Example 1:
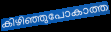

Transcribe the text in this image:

കിഴിഞ്ഞുപോകാത്ത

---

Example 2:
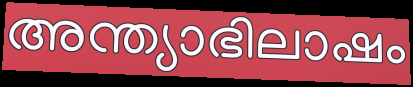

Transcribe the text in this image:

അന്ത്യാഭിലാഷം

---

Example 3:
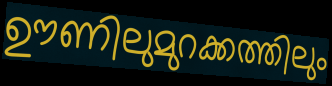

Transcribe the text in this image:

ഊണിലുമുറക്കത്തിലും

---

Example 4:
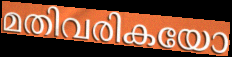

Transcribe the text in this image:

മതിവരികയോ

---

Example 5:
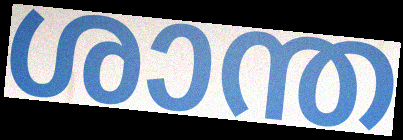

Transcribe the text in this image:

ശാന്ത